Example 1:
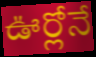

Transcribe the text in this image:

ఊర్లోనే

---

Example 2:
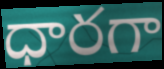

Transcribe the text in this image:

ధారగా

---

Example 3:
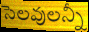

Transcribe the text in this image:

సెలవులన్నీ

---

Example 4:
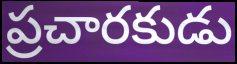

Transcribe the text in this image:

ప్రచారకుడు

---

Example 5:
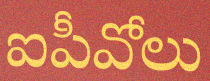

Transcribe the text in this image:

ఐపీవోలు